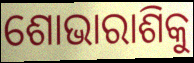
ଶୋଭାରାଶିକୁ